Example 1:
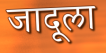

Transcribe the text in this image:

जादूला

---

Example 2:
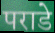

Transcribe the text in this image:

पराडे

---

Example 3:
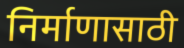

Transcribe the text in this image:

निर्माणासाठी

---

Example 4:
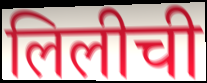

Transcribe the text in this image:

लिलीची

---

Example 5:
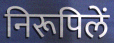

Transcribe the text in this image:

निरूपिलें